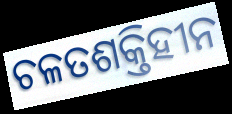
ଚଳତଶକ୍ତିହୀନ